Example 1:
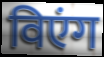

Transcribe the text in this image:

विएंग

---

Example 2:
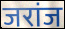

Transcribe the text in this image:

जरांज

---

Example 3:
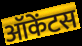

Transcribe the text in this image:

ऑकेंटस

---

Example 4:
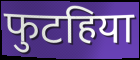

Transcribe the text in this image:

फुटहिया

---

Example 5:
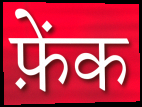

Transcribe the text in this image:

फ़ेंक